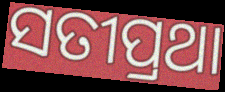
ସତୀପ୍ରଥା